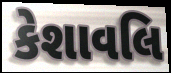
કેશાવલિ